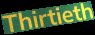
Thirtieth